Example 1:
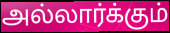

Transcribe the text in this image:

அல்லார்க்கும்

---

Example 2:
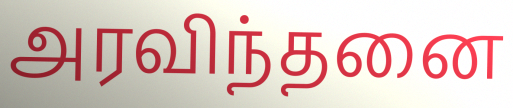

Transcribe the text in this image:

அரவிந்தனை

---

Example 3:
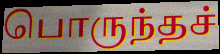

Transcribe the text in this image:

பொருந்தச்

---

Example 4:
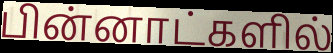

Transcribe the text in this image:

பின்னாட்களில்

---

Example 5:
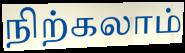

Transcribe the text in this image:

நிற்கலாம்